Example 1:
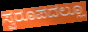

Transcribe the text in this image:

ಸ್ವರೂಪದಲ್ಲೂ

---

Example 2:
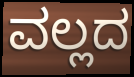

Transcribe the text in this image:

ವಲ್ಲದ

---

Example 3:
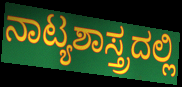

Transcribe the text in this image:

ನಾಟ್ಯಶಾಸ್ತ್ರದಲ್ಲಿ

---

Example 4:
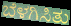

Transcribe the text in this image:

ಬೆಳಗಿಸಿತು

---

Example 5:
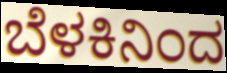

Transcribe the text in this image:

ಬೆಳಕಿನಿಂದ